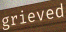
grieved